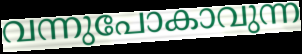
വന്നുപോകാവുന്ന